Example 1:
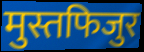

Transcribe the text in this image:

मुस्तफिजुर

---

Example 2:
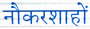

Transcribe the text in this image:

नौकरशाहों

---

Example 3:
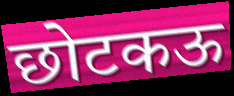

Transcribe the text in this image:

छोटकऊ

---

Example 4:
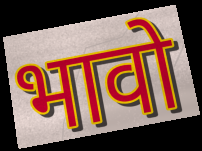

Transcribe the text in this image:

भावो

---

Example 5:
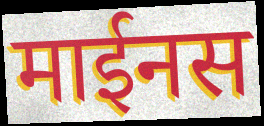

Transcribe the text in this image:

माईनस